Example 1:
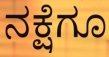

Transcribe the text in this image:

ನಕ್ಷೆಗೂ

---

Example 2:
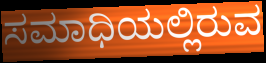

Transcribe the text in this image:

ಸಮಾಧಿಯಲ್ಲಿರುವ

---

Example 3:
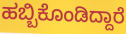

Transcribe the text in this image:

ಹಬ್ಬಿಕೊಂಡಿದ್ದಾರೆ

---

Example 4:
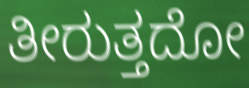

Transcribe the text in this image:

ತೀರುತ್ತದೋ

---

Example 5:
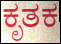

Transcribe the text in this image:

ಕೃತಕ